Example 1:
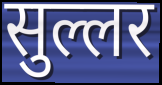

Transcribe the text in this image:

सुल्लर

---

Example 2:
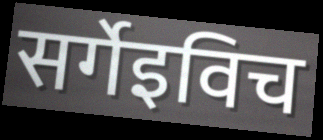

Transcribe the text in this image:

सर्गेइविच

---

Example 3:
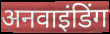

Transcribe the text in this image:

अनवाइंडिंग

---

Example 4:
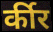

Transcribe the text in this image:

र्कीर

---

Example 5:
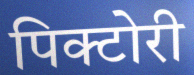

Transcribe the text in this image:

पिक्टोरी